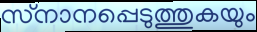
സ്‌നാനപ്പെടുത്തുകയും